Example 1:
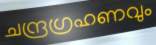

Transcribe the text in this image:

ചന്ദ്രഗ്രഹണവും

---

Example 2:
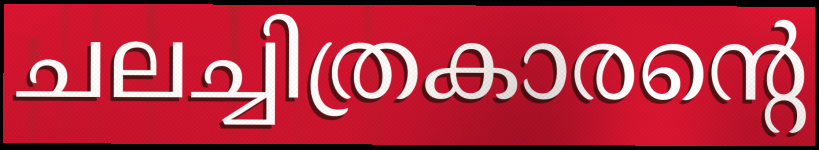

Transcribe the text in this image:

ചലച്ചിത്രകാരന്റെ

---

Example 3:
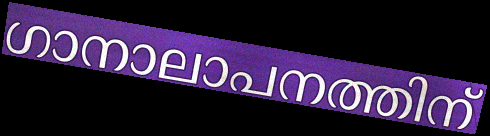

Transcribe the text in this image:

ഗാനാലാപനത്തിന്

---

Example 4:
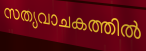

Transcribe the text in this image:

സത്യവാചകത്തിൽ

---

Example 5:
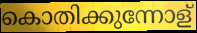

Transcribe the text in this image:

കൊതിക്കുന്നോള്